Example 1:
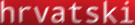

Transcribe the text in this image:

hrvatski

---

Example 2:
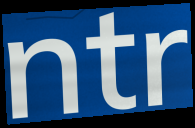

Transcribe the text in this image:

ntr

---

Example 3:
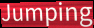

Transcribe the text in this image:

Jumping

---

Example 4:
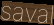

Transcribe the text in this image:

saval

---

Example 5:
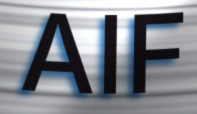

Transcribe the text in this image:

AIF